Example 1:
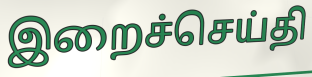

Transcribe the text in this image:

இறைச்செய்தி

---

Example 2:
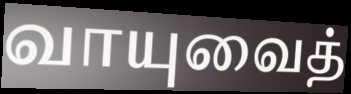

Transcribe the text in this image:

வாயுவைத்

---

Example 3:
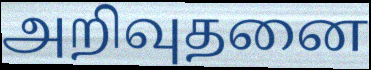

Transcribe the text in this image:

அறிவுதனை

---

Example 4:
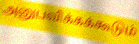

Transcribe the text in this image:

அனுபவிக்கக்கூடும்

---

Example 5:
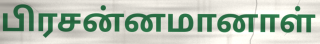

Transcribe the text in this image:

பிரசன்னமானாள்